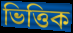
ভিত্তিক